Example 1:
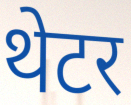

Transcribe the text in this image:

थेटर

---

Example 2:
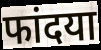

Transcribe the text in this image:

फांदया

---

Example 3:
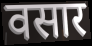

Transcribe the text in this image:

वसार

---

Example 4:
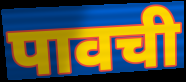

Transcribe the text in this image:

पावची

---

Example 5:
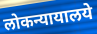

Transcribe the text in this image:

लोकन्यायालये